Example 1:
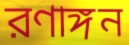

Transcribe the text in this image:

রণাঙ্গন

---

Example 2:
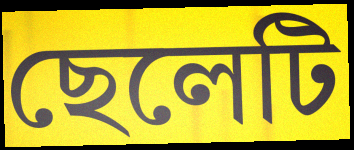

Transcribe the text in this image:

ছেলেটি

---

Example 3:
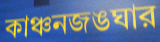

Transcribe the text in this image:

কাঞ্চনজঙঘার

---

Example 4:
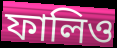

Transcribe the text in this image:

ফালিও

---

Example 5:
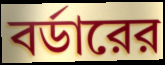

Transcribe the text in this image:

বর্ডারের